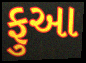
ફુઆ